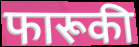
फारूकी